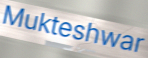
Mukteshwar